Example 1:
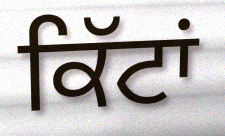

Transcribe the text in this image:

ਕਿੱਟਾਂ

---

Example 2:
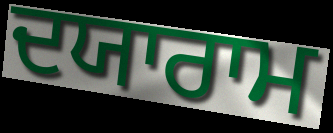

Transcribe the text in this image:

ਦਯਾਰਾਮ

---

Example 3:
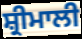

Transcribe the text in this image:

ਸ਼੍ਰੀਮਾਲੀ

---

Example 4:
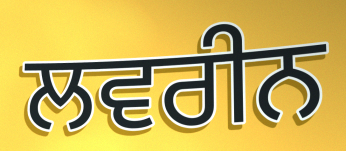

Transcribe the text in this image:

ਲਵਰੀਨ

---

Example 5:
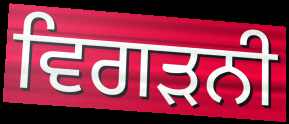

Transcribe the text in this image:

ਵਿਗੜਨੀ